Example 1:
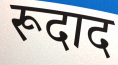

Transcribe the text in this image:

रूदाद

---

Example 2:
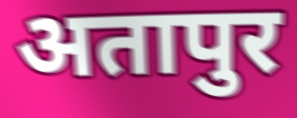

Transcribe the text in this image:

अतापुर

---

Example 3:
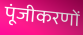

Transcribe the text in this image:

पूंजीकरणों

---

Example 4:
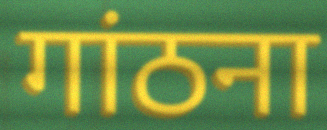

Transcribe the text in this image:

गांठना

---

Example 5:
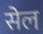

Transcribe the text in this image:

सेल